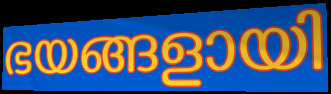
ഭയങ്ങളായി